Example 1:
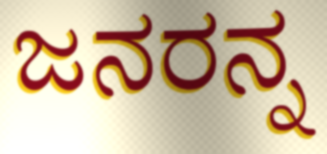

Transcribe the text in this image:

ಜನರನ್ನ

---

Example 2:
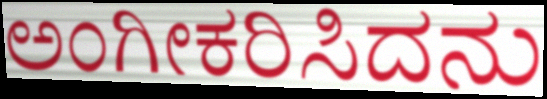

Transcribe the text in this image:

ಅಂಗೀಕರಿಸಿದನು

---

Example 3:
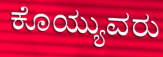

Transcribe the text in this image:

ಕೊಯ್ಯುವರು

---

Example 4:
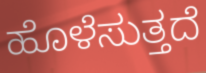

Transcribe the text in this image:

ಹೊಳೆಸುತ್ತದೆ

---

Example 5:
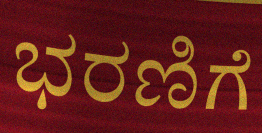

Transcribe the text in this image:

ಭರಣಿಗೆ